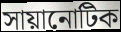
সায়ানোটিক